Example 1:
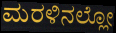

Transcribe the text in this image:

ಮರಳಿನಲ್ಲೋ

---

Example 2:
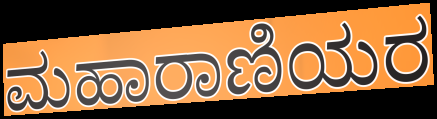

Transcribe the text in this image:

ಮಹಾರಾಣಿಯರ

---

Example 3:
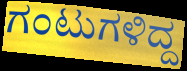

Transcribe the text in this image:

ಗಂಟುಗಳಿದ್ದ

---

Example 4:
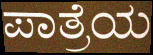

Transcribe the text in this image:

ಪಾತ್ರೆಯ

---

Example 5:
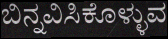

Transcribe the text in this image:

ಬಿನ್ನವಿಸಿಕೊಳ್ಳುವ